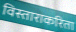
विस्ताराकरिता